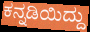
ಕನ್ನಡಿಯಿದ್ದು